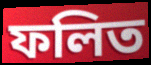
ফলিত